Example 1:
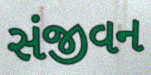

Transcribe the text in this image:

સંજીવન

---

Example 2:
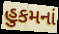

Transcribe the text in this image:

હુકમનાં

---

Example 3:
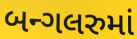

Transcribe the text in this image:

બન્ગલરુમાં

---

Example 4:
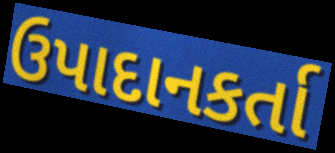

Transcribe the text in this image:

ઉપાદાનકર્તા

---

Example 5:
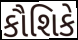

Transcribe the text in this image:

કૌશિકે